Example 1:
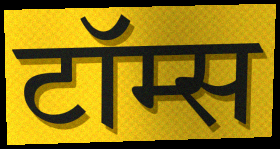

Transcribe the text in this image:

टॉम्स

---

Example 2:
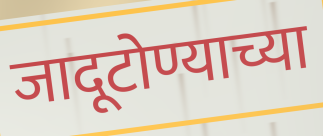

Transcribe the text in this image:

जादूटोण्याच्या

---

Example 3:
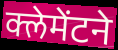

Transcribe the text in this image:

क्लेमेंटने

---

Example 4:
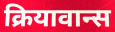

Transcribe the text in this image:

क्रियावान्स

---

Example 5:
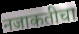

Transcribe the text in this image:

नजाकतीचा